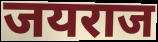
जयराज